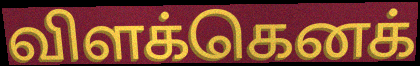
விளக்கெனக்